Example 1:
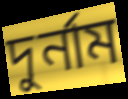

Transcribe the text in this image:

দুৰ্নাম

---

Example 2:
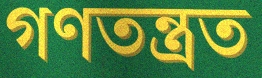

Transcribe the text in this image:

গণতন্ত্ৰত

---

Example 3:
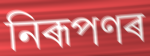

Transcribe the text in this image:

নিৰূপণৰ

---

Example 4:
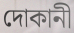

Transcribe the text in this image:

দোকানী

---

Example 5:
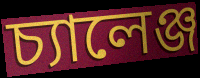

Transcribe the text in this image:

চ্যালেঞ্জ